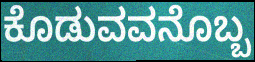
ಕೊಡುವವನೊಬ್ಬ